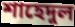
শাহেদুল